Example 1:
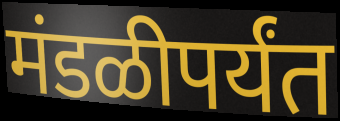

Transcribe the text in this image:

मंडळीपर्यंत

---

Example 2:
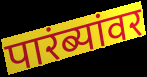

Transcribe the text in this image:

पारंब्यांवर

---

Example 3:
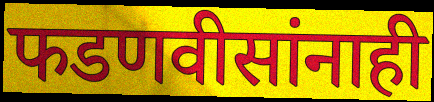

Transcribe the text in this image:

फडणवीसांनाही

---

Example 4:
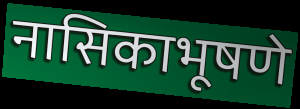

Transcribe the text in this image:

नासिकाभूषणे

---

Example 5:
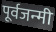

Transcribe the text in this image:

पूर्वजन्मी